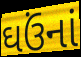
ઘઉંનાં